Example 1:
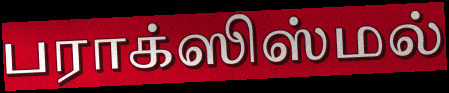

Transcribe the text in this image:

பராக்ஸிஸ்மல்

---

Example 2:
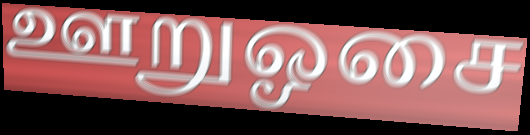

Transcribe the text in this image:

ஊறுஓசை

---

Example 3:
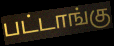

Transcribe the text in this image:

பட்டாங்கு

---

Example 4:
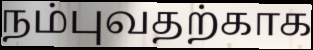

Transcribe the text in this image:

நம்புவதற்காக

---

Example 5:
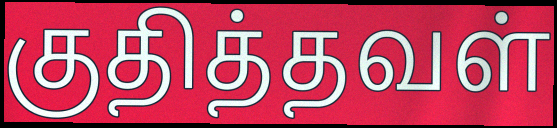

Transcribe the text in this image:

குதித்தவள்